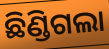
ଛିଣ୍ଡିଗଲା